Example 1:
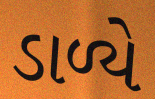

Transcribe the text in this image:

ડાળ્યે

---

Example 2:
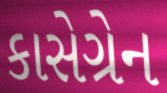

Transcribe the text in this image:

કાસેગ્રેન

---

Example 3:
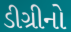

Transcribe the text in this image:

ડીગ્રીનો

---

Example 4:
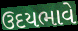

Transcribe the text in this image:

ઉદયભાવે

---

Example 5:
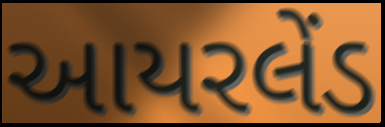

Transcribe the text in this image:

આયરલેંડ